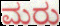
ಮರು